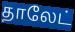
தாலேட்